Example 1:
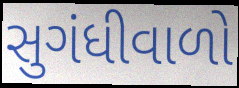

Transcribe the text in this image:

સુગંધીવાળો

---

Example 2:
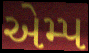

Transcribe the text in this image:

એમ્પ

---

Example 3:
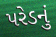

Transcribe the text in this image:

પરેડનું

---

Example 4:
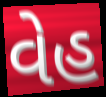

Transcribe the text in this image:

વેહ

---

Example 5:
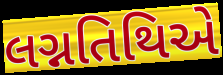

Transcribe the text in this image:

લગ્નતિથિએ